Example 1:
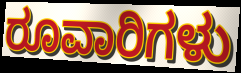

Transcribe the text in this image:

ರೂವಾರಿಗಳು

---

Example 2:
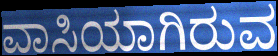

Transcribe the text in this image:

ವಾಸಿಯಾಗಿರುವ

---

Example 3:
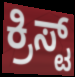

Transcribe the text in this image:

ಕ್ರಿಸ್ಟ್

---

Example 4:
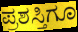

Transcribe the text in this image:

ಪ್ರಶಸ್ತಿಗೂ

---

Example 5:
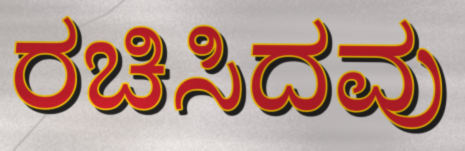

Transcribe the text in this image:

ರಚಿಸಿದವು